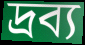
দ্ৰব্য